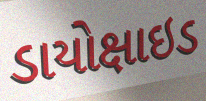
ડાયોક્ષાઇડ